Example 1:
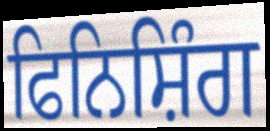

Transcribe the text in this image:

ਫਿਨਿਸ਼ਿੰਗ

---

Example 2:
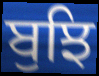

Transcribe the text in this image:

ਬੁਝਿ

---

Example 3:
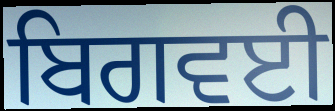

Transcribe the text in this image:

ਬਿਗਵਈ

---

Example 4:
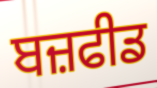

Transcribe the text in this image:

ਬਜ਼ਫੀਡ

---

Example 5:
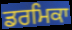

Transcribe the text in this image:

ਡਰਮਿਕਾ